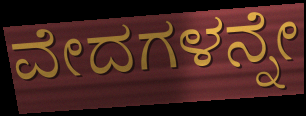
ವೇದಗಳನ್ನೇ